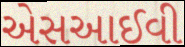
એસઆઈવી